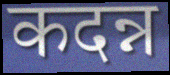
कदन्न